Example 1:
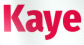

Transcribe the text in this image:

Kaye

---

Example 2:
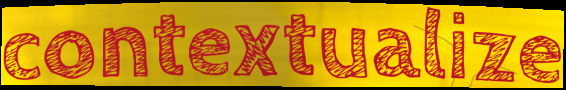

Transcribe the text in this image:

contextualize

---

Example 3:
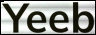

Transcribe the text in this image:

Yeeb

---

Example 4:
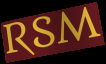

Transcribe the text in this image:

RSM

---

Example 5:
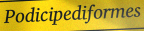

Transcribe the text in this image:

Podicipediformes